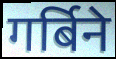
गर्बिने